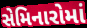
સેમિનારોમાં